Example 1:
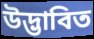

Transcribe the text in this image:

উদ্ভাবিত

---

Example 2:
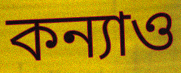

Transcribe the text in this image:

কন্যাও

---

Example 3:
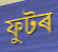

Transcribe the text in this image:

ফুটৰ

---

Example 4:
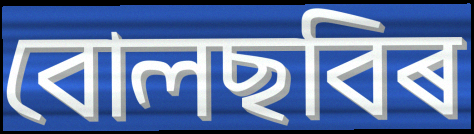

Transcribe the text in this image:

বোলছবিৰ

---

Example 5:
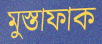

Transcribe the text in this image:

মুস্তাফাক